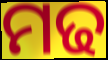
ମଢ